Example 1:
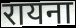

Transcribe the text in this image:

रायना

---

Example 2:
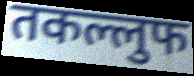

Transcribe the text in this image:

तकल्लुफ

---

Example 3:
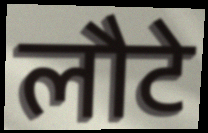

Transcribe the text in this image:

लौटे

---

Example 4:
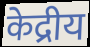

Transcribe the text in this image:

केद्रीय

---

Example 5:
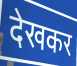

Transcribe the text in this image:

देखकर